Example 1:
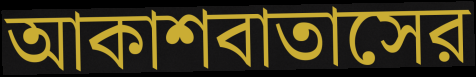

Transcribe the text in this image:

আকাশবাতাসের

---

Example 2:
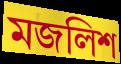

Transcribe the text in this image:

মজলিশ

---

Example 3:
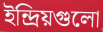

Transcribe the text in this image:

ইন্দ্রিয়গুলো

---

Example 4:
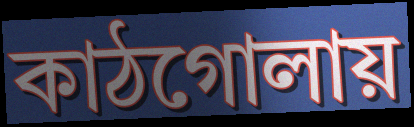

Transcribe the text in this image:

কাঠগোলায়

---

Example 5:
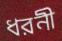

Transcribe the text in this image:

ধরনী